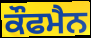
ਕੌਫਮੈਨ